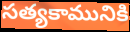
సత్యకామునికి